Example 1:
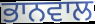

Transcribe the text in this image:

ਭਾਨਵਾਲ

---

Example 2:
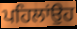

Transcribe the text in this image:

ਪਹਿਲਾਂਉਹ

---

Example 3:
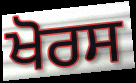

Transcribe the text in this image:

ਖੋਰਸ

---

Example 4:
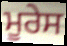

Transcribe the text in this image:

ਮੂਰੇਸ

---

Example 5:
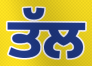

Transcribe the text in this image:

ਤੱਲ